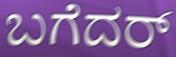
ಬಗೆದರ್